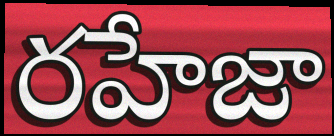
రహేజా